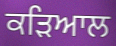
ਕੜਿਆਲ